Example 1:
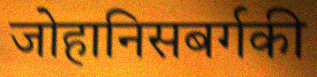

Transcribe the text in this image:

जोहानिसबर्गकी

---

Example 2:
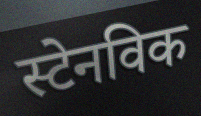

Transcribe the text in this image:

स्टेनविक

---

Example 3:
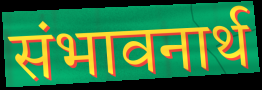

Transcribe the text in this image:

संभावनार्थ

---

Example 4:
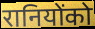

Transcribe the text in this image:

रानियोंको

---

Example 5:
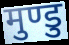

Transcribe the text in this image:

मुण्डु